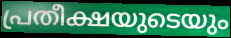
പ്രതീക്ഷയുടെയും